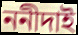
ননীদাই